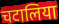
चटालिया